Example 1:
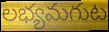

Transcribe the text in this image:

లభ్యమగుట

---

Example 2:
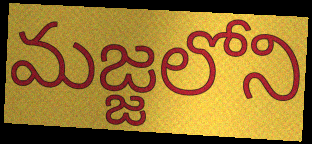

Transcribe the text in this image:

మజ్జలోని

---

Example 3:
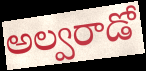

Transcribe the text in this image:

అల్వరాడో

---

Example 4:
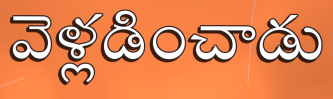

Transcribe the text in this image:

వెళ్లడించాడు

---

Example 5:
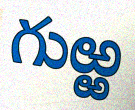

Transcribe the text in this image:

గుఱ్ఱ